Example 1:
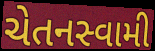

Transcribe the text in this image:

ચેતનસ્વામી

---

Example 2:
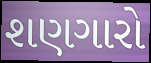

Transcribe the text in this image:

શણગારો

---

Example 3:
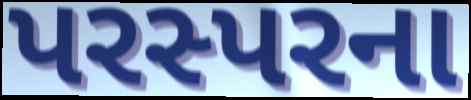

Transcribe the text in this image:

પરસ્પરના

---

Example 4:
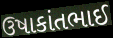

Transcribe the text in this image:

ઉષાકાંતભાઈ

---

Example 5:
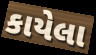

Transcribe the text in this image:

કાયેલા